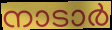
നാടാർ